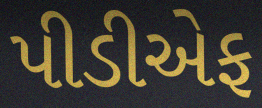
પીડીએફ